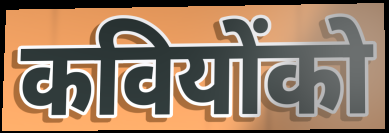
कवियोंको